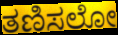
ತಣಿಸಲೋ